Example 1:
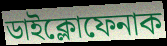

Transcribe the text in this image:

ডাইক্লোফেনাক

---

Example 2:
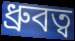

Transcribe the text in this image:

ধ্রুবত্ব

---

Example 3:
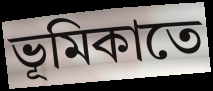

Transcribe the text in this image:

ভূমিকাতে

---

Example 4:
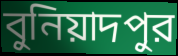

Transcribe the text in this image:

বুনিয়াদপুর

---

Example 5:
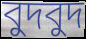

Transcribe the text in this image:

বুদবুদ